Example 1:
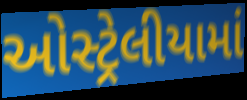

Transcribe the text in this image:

ઓસ્ટ્રેલીયામાં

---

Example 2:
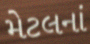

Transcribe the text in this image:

મેટલનાં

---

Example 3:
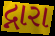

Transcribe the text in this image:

દ્નારા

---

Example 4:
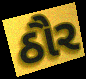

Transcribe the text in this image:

ઠૌર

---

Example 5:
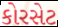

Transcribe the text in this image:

કોરસેટ